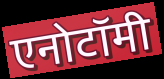
एनोटॉमी